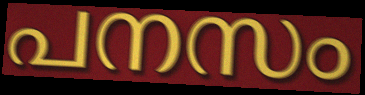
പനസം